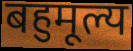
बहुमूल्य